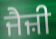
ਜੈਜ਼ੀ